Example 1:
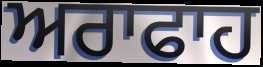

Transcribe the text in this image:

ਅਰਾਫਾਹ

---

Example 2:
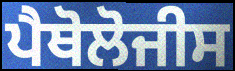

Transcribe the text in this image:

ਪੈਥੋਲੋਜੀਸ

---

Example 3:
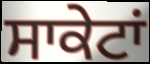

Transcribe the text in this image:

ਸਾਕੇਟਾਂ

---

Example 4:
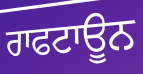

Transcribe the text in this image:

ਰਾਫਟਾਊਨ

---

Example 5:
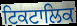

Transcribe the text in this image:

ਟਿਕਟਾਲਿਕ